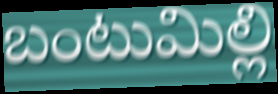
బంటుమిల్లి